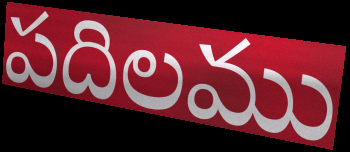
పదిలము